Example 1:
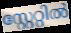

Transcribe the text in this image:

സ്റ്റേറ്റിൽ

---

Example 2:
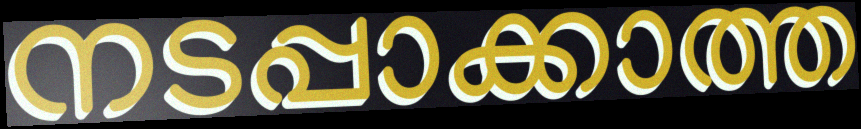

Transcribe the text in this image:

നടപ്പാക്കാത്ത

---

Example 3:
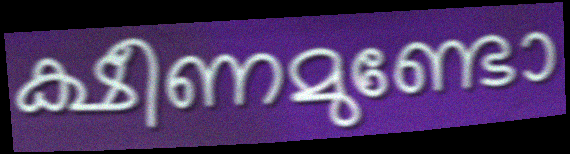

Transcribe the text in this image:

ക്ഷീണമുണ്ടോ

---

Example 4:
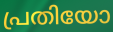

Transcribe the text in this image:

പ്രതിയോ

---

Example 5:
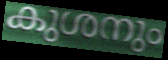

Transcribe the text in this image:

കുശനും